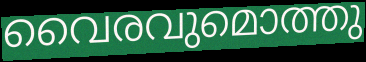
വൈരവുമൊത്തു